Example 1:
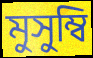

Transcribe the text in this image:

মুসুম্বি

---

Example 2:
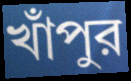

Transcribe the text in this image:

খাঁপুর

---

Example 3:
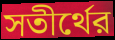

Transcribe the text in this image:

সতীর্থের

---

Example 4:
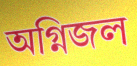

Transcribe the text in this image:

অগ্নিজল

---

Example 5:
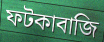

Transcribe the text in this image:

ফটকাবাজি